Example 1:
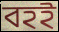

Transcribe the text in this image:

বহই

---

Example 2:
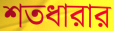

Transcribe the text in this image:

শতধারার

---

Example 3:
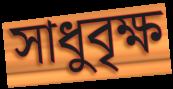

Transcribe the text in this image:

সাধুবৃক্ষ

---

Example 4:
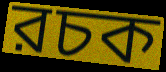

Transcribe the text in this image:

রচক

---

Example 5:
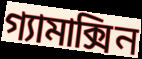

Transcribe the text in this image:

গ্যামাক্সিন